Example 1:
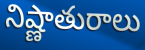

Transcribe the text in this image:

నిష్ణాతురాలు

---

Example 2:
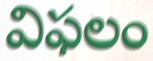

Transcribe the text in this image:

విఫలం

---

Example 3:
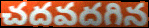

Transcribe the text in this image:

చదవదగిన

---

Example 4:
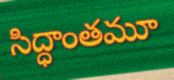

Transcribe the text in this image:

సిద్ధాంతమూ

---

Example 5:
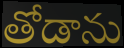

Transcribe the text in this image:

తోడాను